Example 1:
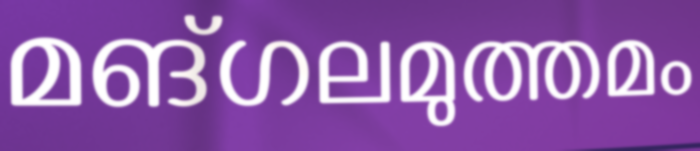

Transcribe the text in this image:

മങ്ഗലമുത്തമം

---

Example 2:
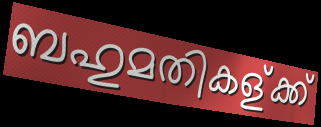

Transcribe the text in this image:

ബഹുമതികള്ക്ക്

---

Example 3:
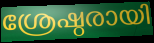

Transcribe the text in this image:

ശ്രേഷ്ഠരായി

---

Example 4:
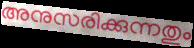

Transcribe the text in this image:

അനുസരിക്കുന്നതും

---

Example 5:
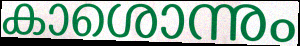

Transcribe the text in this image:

കാശൊന്നും